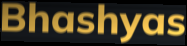
Bhashyas